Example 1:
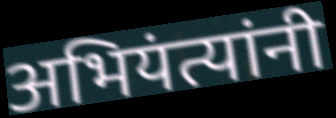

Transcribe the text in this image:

अभियंत्यांनी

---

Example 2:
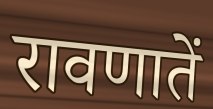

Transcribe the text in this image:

रावणातें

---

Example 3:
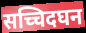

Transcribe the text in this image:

सच्चिदघन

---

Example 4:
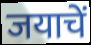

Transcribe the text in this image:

जयाचें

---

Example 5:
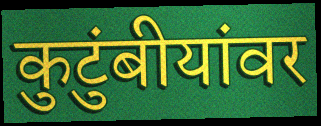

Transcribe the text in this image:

कुटुंबीयांवर